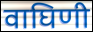
वाघिणी